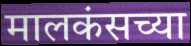
मालकंसच्या